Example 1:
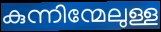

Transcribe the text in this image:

കുന്നിന്മേലുള്ള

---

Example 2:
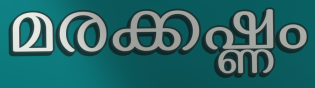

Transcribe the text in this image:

മരക്കഷ്ണം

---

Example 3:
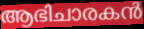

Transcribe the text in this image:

ആഭിചാരകൻ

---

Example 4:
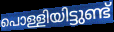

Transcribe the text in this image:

പൊള്ളിയിട്ടുണ്ട്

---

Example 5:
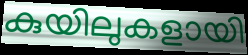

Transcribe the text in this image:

കുയിലുകളായി